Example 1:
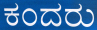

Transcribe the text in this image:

ಕಂದರು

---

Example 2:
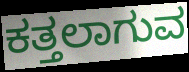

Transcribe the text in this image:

ಕತ್ತಲಾಗುವ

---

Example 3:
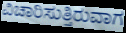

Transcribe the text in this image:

ವಿಚಾರಿಸುತ್ತಿರುವಾಗ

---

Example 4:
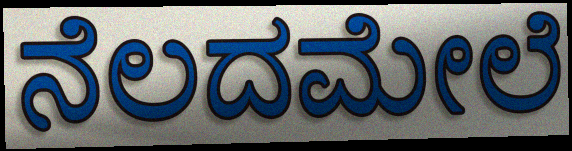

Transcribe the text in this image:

ನೆಲದಮೇಲೆ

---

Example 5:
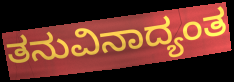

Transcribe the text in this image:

ತನುವಿನಾದ್ಯಂತ